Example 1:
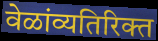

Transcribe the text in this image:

वेळांव्यतिरिक्त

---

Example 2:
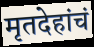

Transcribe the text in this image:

मृतदेहांचं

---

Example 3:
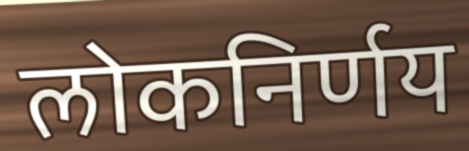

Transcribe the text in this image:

लोकनिर्णय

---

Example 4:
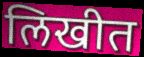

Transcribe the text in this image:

लिखीत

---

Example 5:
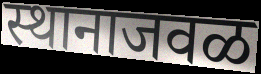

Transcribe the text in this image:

स्थानाजवळ